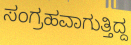
ಸಂಗ್ರಹವಾಗುತ್ತಿದ್ದ